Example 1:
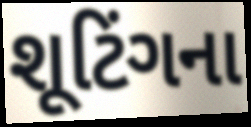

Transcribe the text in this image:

શૂટિંગના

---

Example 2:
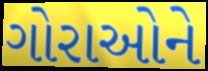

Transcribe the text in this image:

ગોરાઓને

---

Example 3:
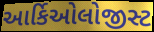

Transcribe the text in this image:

આર્કિઓલોજીસ્ટ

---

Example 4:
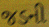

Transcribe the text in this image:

જડની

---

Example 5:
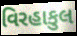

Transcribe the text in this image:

વિરહાકુલ